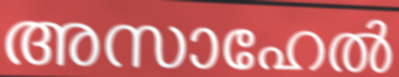
അസാഹേൽ